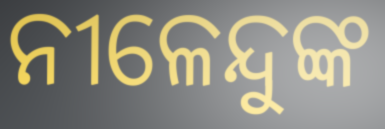
ନୀଳେନ୍ଦୁଙ୍କ